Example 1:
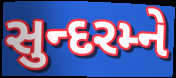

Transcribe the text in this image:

સુન્દરમ્ને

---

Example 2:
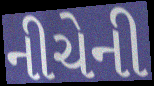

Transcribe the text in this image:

નીચેની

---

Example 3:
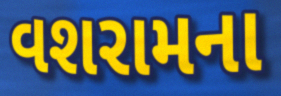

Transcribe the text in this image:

વશરામના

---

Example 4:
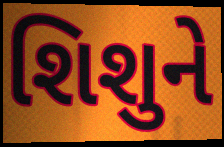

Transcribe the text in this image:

શિશુને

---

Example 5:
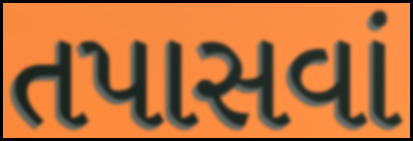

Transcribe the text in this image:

તપાસવાં